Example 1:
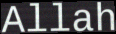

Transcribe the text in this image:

Allah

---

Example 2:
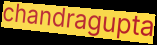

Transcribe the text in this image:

chandragupta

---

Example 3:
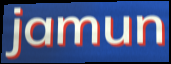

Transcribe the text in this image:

jamun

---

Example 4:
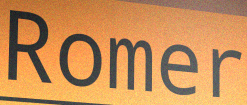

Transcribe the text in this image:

Romer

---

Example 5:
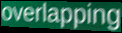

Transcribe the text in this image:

overlapping